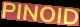
PINOID